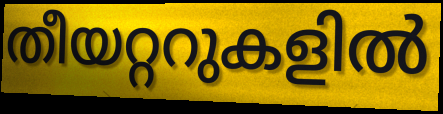
തീയറ്ററുകളിൽ